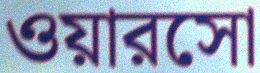
ওয়ারসো